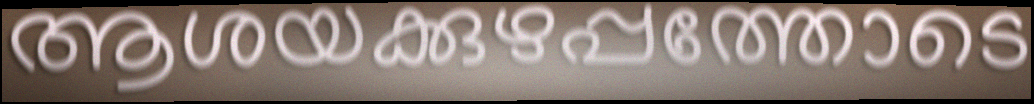
ആശയക്കുഴപ്പത്തോടെ